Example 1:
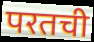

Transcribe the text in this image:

परतची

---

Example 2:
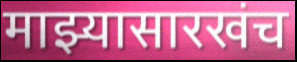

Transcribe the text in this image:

माझ्यासारखंच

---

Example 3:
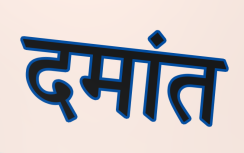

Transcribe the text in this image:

दमांत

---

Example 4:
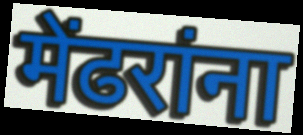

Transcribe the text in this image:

मेंढरांना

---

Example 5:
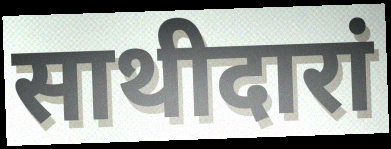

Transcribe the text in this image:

साथीदारां